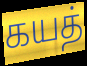
கயத்